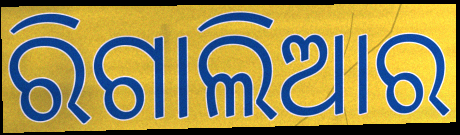
ରିଗାଲିଆର